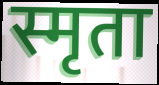
स्मृता